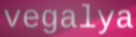
vegalya